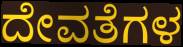
ದೇವತೆಗಳ